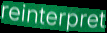
reinterpret